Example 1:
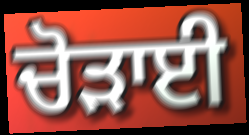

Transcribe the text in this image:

ਚੋੜਾਈ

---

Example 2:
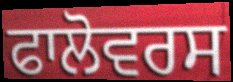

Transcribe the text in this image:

ਫਾਲੋਵਰਸ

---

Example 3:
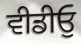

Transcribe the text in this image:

ਵੀਡੀਓੁ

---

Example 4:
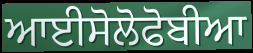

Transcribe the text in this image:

ਆਈਸੋਲੋਫੋਬੀਆ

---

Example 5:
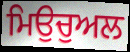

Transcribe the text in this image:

ਮਿਉਚੁਅਲ